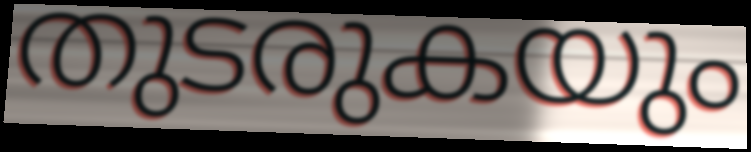
തുടരുകയും